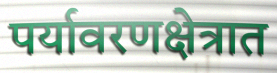
पर्यावरणक्षेत्रात